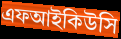
এফআইকিউসি